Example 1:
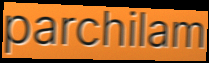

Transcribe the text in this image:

parchilam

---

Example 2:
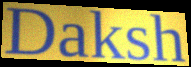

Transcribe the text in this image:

Daksh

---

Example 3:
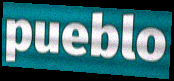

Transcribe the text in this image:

pueblo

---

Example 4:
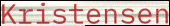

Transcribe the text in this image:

Kristensen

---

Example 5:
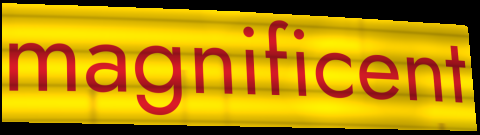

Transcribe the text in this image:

magnificent